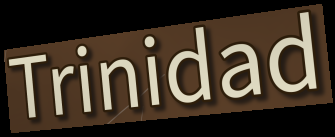
Trinidad